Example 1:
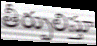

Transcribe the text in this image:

తీర్పులిస్తూ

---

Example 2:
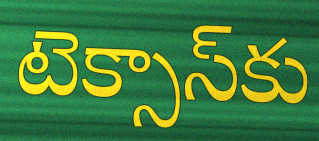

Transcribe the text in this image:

టెక్సాస్‌కు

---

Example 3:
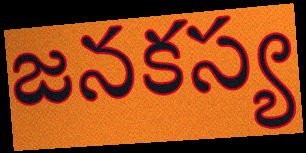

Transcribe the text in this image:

జనకస్య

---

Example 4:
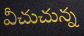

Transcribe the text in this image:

వీచుచున్న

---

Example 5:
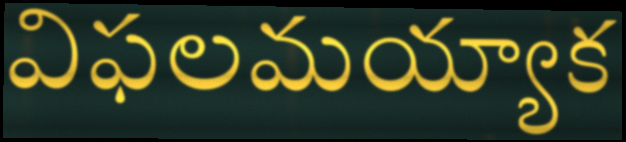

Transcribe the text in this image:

విఫలమయ్యాక